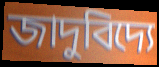
জাদুবিদ্যে